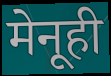
मेनूही